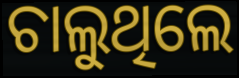
ଚାଲୁଥିଲେ